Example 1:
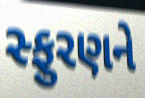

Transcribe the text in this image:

સ્ફુરણને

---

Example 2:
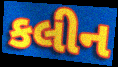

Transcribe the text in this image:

કલીન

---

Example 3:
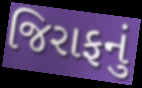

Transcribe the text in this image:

જિરાફનું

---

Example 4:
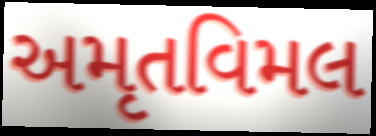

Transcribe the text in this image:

અમૃતવિમલ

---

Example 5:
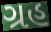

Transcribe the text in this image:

ગ્રહ